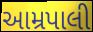
આમ્રપાલી